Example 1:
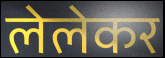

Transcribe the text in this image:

लेलेकर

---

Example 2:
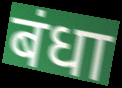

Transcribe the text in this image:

बंधा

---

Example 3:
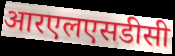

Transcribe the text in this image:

आरएलएसडीसी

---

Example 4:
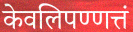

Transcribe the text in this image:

केवलिपण्णत्तं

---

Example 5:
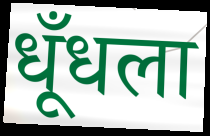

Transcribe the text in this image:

धूँधला